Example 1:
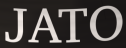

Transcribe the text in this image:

JATO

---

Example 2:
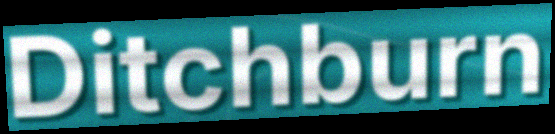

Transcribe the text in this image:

Ditchburn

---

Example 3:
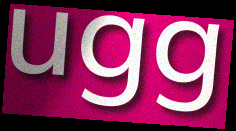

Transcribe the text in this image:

ugg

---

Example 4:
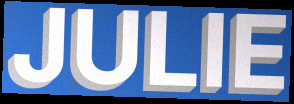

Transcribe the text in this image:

JULIE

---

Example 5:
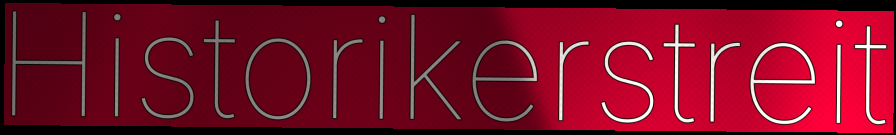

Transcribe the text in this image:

Historikerstreit